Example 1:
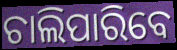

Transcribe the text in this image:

ଚାଲିପାରିବେ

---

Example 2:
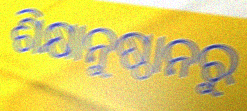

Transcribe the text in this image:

ଶିକ୍ଷାନୁଷ୍ଠାନରୁ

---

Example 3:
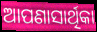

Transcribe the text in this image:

ଆପଣାସାର୍ଥିକା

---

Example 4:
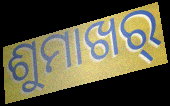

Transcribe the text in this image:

ଶୁମାଖର୍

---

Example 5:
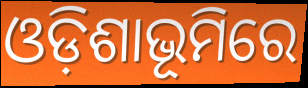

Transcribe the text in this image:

ଓଡ଼ିଶାଭୂମିରେ